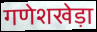
गणेशखेड़ा